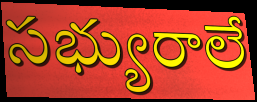
సభ్యురాలే